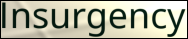
Insurgency